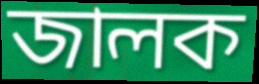
জালক